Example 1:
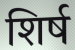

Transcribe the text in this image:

शिर्ष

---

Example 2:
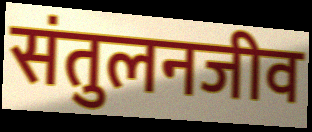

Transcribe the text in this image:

संतुलनजीव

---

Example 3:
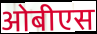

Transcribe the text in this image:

ओबीएस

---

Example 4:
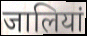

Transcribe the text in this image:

जालियां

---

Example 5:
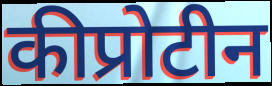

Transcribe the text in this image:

कीप्रोटीन